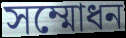
সম্মোধন